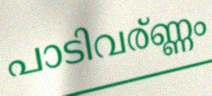
പാടിവര്ണ്ണം